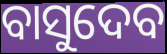
ବାସୁଦେବ